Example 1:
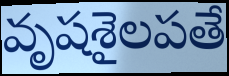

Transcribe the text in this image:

వృషశైలపతే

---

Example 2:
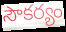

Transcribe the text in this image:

సౌకర్యం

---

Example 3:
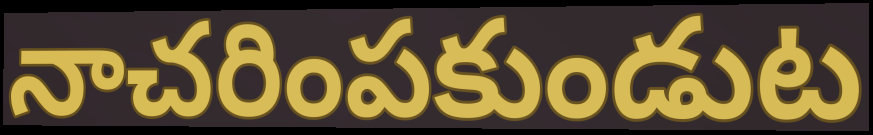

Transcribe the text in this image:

నాచరింపకుండుట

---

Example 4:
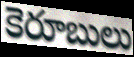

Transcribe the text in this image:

కెరూబులు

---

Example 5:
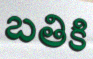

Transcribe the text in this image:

బతికి